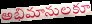
అభిమానులకూ